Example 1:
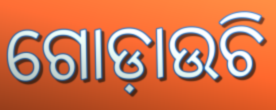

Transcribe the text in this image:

ଗୋଡ଼ାଉଚି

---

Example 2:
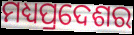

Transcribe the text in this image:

ମଧ୍ଯପ୍ରଦେଶର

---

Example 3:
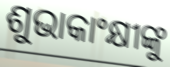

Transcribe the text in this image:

ଶୁଭାକାଂକ୍ଷୀଙ୍କୁ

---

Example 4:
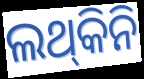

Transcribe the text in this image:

ଲଥ୍‍କିନି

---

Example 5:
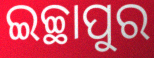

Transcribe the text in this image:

ଇଚ୍ଛାପୁର